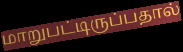
மாறுபட்டிருப்பதால்